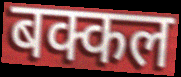
बक्कल